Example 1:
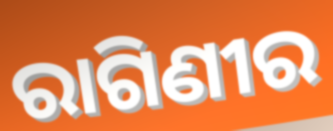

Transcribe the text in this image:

ରାଗିଣୀର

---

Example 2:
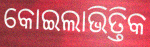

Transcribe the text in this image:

କୋଇଲାଭିତ୍ତିକ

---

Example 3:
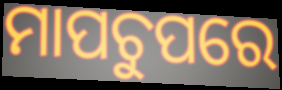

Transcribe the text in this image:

ମାପଚୁପରେ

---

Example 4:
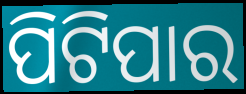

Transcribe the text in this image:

ପିଟିପାର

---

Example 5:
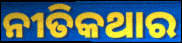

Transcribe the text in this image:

ନୀତିକଥାର